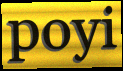
poyi